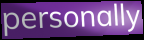
personally